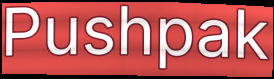
Pushpak